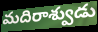
మదిరాశ్వుడు